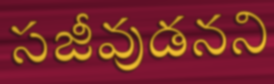
సజీవుడనని